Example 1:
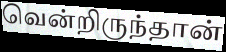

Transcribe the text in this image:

வென்றிருந்தான்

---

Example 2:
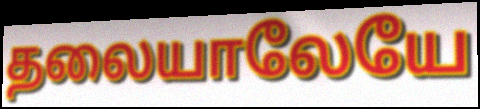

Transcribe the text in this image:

தலையாலேயே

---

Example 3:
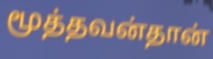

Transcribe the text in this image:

மூத்தவன்தான்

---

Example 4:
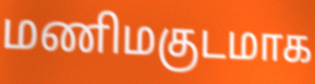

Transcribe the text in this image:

மணிமகுடமாக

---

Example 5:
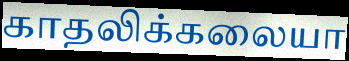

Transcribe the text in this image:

காதலிக்கலையா